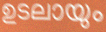
ഉടലായും